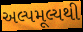
અલ્પમૂલ્યથી